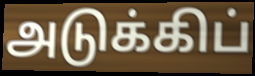
அடுக்கிப்